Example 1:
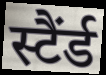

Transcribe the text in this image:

स्टैंर्ड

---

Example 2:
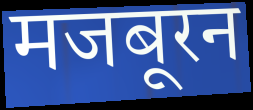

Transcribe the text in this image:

मजबूरन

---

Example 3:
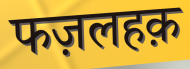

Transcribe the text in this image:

फज़लहक़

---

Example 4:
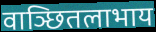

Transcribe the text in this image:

वाञ्छितलाभाय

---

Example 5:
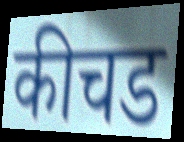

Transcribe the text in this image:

कीचड